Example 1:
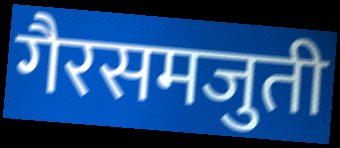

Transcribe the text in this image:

गैरसमजुती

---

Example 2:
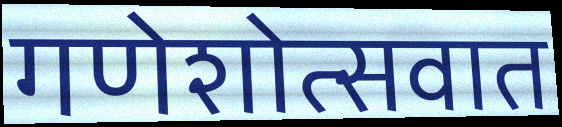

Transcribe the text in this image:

गणेशोत्सवात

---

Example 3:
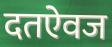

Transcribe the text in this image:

दतऐवज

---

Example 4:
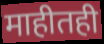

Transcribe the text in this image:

माहीतही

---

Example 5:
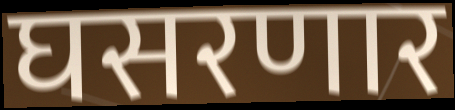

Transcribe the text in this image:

घसरणार